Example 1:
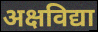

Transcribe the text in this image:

अक्षविद्या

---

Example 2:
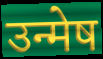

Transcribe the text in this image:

उन्मेष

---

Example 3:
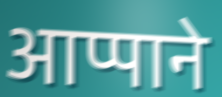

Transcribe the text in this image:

आप्पाने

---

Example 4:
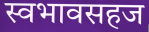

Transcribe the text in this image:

स्वभावसहज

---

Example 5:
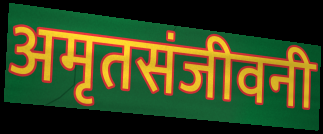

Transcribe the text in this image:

अमृतसंजीवनी